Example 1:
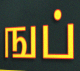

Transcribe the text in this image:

ஙப்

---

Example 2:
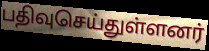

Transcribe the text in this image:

பதிவுசெய்துள்ளனர்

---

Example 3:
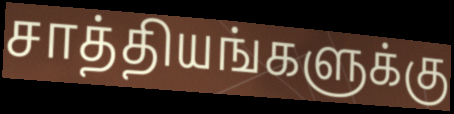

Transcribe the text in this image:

சாத்தியங்களுக்கு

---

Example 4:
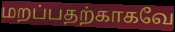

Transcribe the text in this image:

மறப்பதற்காகவே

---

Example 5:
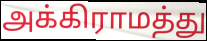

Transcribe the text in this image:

அக்கிராமத்து